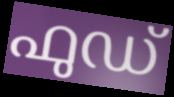
ഫുഡ്